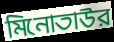
মিনোতাউর